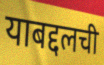
याबद्दलची